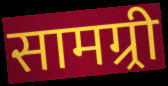
सामग्र्री